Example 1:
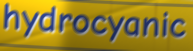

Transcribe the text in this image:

hydrocyanic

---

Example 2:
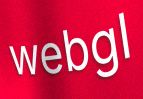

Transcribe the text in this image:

webgl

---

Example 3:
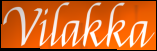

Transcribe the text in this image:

Vilakka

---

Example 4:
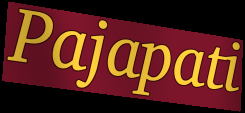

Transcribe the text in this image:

Pajapati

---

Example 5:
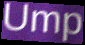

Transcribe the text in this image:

Ump